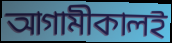
আগামীকালই